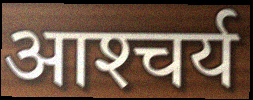
आश्‍चर्य